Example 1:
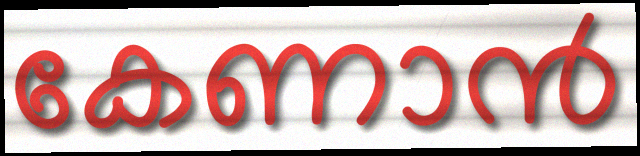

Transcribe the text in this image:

കേണാൻ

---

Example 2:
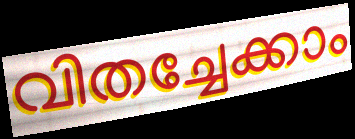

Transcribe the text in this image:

വിതച്ചേക്കാം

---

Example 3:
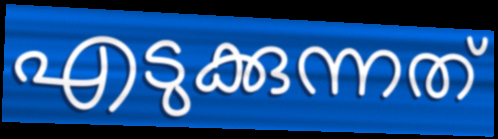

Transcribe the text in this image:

എടുക്കുന്നത്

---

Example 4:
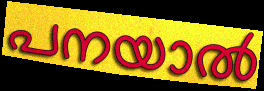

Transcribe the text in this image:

പനയാൽ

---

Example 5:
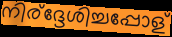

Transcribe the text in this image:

നിര്ദ്ദേശിച്ചപ്പോള്